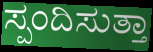
ಸ್ಪಂದಿಸುತ್ತಾ